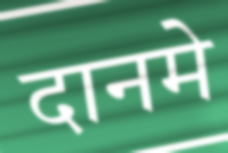
दानमे